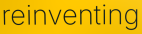
reinventing